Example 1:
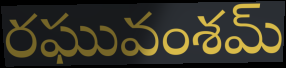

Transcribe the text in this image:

రఘువంశమ్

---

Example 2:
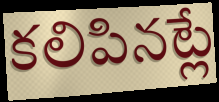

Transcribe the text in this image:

కలిపినట్లే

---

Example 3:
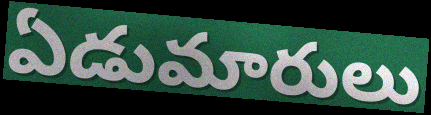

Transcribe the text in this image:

ఏడుమారులు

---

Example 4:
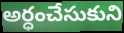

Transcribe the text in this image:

అర్ధంచేసుకుని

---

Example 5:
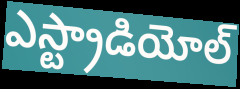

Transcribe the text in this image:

ఎస్ట్రాడియోల్